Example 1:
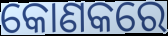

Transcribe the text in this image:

କୋଣକରେ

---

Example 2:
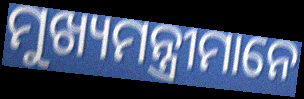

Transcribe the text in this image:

ମୁଖ୍ୟମନ୍ତ୍ରୀମାନେ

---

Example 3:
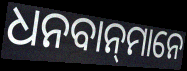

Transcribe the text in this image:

ଧନବାନ୍‍ମାନେ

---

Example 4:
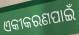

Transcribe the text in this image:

ଏକୀକରଣପାଇଁ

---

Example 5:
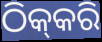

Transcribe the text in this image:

ଠିକ୍‍କରି